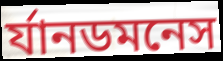
র্যানডমনেস